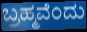
ಬ್ರಹ್ಮವೆಂದು